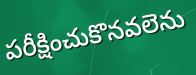
పరీక్షించుకొనవలెను